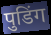
पुडिंग